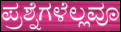
ಪ್ರಶ್ನೆಗಳೆಲ್ಲವೂ